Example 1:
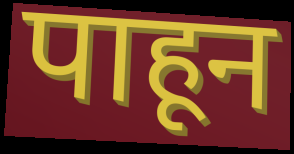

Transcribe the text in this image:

पाहून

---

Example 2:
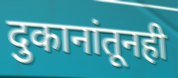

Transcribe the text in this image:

दुकानांतूनही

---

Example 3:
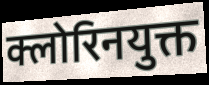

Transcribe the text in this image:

क्लोरिनयुक्त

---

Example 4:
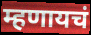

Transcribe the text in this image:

म्हणायचं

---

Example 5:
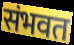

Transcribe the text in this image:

संभवत